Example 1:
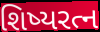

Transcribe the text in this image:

શિષ્યરત્ન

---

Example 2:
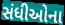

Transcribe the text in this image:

સંધીઓના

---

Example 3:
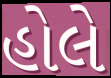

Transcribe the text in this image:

હોલે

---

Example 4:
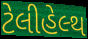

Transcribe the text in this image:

ટેલીહેલ્થ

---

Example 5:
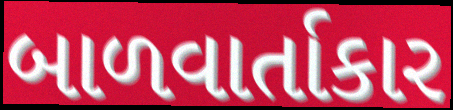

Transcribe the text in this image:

બાળવાર્તાકાર